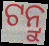
ଟନ୍ରୁ